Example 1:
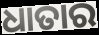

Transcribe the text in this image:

ଧାତାର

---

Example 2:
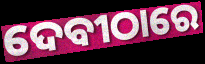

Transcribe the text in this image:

ଦେବୀଠାରେ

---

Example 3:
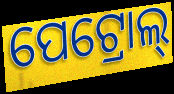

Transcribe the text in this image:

ପେଟ୍ରୋଲ୍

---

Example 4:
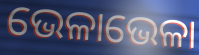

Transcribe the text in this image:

ଭେଳାଭେଳା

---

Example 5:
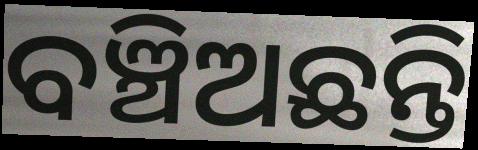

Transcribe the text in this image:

ବଞ୍ଚିଅଛନ୍ତି